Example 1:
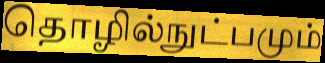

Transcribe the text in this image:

தொழில்நுட்பமும்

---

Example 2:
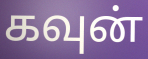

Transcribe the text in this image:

கவுன்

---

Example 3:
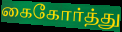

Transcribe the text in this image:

கைகோர்த்து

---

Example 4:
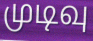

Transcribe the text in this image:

முடிவு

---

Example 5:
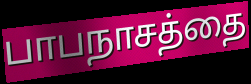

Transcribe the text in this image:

பாபநாசத்தை